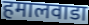
हमालवाडा